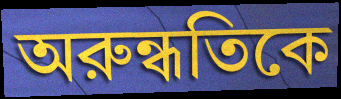
অরুন্ধতিকে